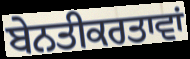
ਬੇਨਤੀਕਰਤਾਵਾਂ